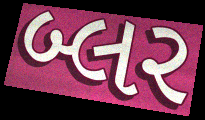
બ્લર